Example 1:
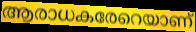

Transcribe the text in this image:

ആരാധകരേറെയാണ്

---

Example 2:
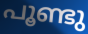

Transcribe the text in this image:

പൂണ്ടു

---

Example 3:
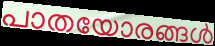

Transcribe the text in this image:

പാതയോരങ്ങൾ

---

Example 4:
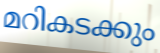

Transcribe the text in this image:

മറികടക്കും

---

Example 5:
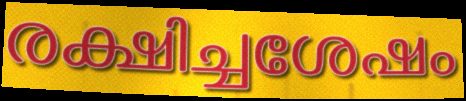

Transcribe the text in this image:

രക്ഷിച്ചശേഷം